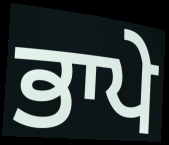
ਭਾਪੇ